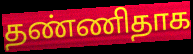
தண்ணிதாக